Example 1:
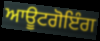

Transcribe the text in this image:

ਆਊਟਗੋਇੰਗ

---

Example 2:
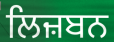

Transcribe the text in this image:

ਲਿਜ਼ਬਨ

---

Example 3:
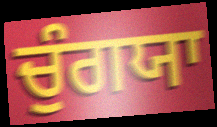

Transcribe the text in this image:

ਚੁੰਗਯਾ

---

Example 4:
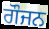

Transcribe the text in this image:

ਗੌਜਨ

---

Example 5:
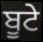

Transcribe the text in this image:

ਬੂਟੇ